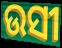
ଉସୀ